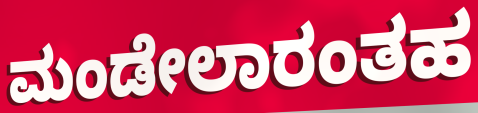
ಮಂಡೇಲಾರಂತಹ